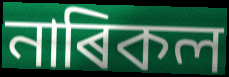
নাৰিকল